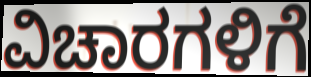
ವಿಚಾರಗಳಿಗೆ